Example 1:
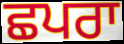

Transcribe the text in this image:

ਛਪਰਾ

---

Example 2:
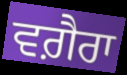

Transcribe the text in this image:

ਵਗ਼ੈਰਾ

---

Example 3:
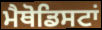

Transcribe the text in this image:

ਮੈਥੋਡਿਸਟਾਂ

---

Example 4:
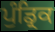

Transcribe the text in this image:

ਪੁੰਡ੍ਰਿਕ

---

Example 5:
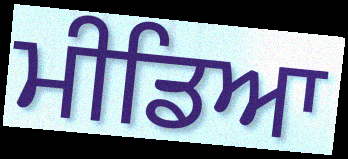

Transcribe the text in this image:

ਮੀਡਿਆ